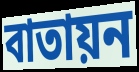
বাতায়ন